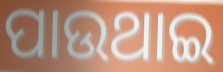
ପାଉଥାଇ